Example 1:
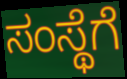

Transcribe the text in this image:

ಸಂಸ್ಥೆಗೆ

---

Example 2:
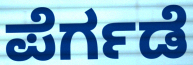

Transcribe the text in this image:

ಪೆರ್ಗಡೆ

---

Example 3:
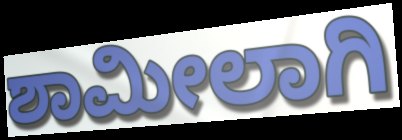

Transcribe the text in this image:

ಶಾಮೀಲಾಗಿ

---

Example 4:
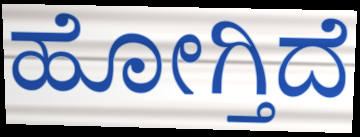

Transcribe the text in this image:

ಹೋಗ್ತಿದೆ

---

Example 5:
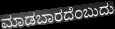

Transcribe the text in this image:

ಮಾಡಬಾರದೆಂಬುದು